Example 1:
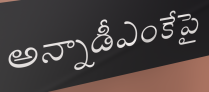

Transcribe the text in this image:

అన్నాడీఎంకేపై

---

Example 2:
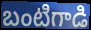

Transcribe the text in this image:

బంటిగాడి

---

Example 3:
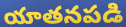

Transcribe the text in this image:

యాతనపడి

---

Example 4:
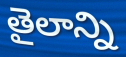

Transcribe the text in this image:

తైలాన్ని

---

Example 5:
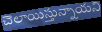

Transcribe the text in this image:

చెలాయిస్తున్నాయని